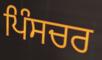
ਪਿੰਸਚਰ